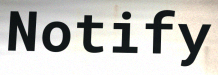
Notify